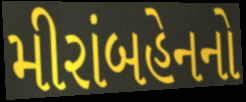
મીરાંબહેનનો